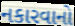
નકારવાનો